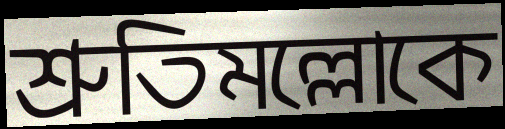
শ্রুতিমল্লোকে